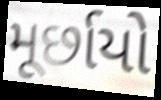
મૂર્છાયો